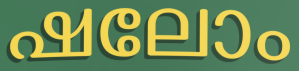
ഷലോം